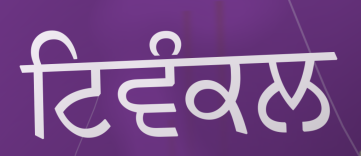
ਟਿਵੰਕਲ